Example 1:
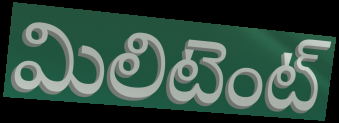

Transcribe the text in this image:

మిలిటెంట్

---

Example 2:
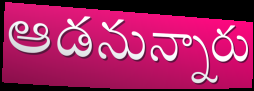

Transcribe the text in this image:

ఆడనున్నారు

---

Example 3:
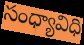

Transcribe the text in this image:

సంధ్యావిధి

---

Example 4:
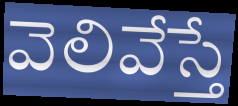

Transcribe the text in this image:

వెలివేస్తే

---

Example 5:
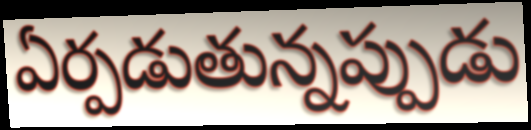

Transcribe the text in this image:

ఏర్పడుతున్నప్పుడు